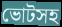
ভোটসহ